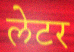
लेटर